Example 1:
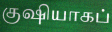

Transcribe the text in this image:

குஷியாகப்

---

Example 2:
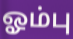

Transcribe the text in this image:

ஓம்பு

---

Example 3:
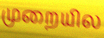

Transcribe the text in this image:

முறையில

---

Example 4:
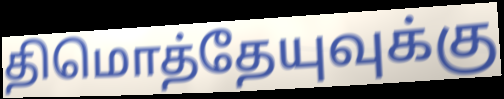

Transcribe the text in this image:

திமொத்தேயுவுக்கு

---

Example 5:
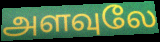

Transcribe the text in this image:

அளவுலே